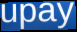
upay